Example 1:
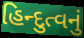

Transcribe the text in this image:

હિન્દુત્વનું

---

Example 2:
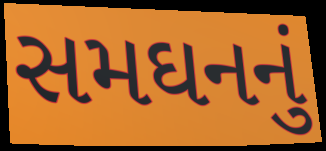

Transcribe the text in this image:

સમઘનનું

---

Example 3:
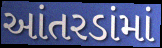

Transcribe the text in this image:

આંતરડાંમાં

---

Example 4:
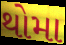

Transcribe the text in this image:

થોમા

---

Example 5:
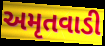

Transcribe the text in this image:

અમૃતવાડી